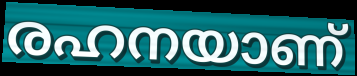
രഹനയാണ്